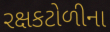
રક્ષકટોળીના